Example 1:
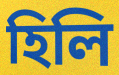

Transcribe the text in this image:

হিলি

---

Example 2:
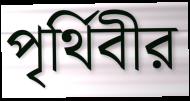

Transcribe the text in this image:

পৃর্থিবীর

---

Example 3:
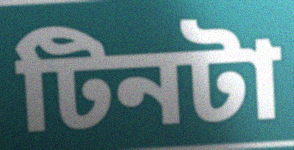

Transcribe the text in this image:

টিনটা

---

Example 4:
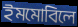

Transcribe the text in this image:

ইমমোবিলে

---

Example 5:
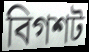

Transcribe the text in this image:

বিগশট